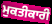
ਮੁਕਤੀਕਾਰੀ